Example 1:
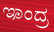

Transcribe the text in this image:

ಇಾಂದ್ರ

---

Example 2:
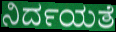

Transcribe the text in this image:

ನಿರ್ದಯತೆ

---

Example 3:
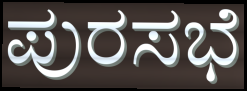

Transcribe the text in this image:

ಪುರಸಭೆ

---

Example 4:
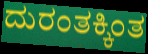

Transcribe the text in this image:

ದುರಂತಕ್ಕಿಂತ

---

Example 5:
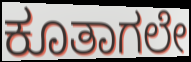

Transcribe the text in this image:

ಕೂತಾಗಲೇ